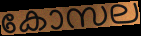
കോസല